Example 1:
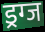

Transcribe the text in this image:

ड्रग्ज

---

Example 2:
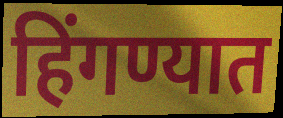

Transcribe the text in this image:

हिंगण्यात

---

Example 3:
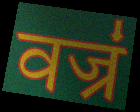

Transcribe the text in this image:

वज्रं॑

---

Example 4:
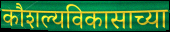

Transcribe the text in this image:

कौशल्यविकासाच्या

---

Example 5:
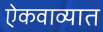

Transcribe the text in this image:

ऐकवाव्यात